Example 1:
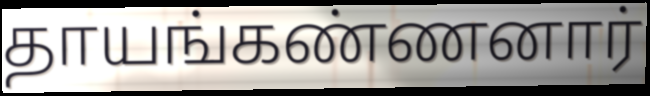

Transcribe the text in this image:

தாயங்கண்ணனார்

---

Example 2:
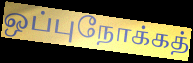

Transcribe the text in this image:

ஒப்புநோக்கத்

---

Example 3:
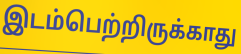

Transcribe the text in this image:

இடம்பெற்றிருக்காது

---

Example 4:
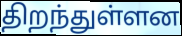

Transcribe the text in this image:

திறந்துள்ளன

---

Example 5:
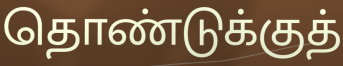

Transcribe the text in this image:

தொண்டுக்குத்